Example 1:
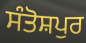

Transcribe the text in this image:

ਸੰਤੋਸ਼ਪੁਰ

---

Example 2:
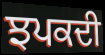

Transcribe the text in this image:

ਝਪਕਦੀ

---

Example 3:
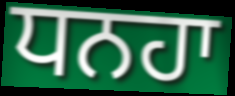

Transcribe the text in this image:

ਧਨਹਾ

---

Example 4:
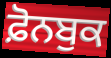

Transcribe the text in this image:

ਫ਼ੋਨਬੁਕ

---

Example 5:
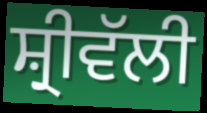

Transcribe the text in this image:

ਸ਼੍ਰੀਵੱਲੀ